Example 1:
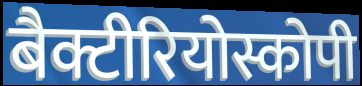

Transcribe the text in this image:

बैक्टीरियोस्कोपी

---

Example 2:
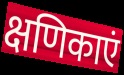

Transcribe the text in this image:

क्षणिकाएं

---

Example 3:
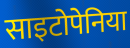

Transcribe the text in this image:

साइटोपेनिया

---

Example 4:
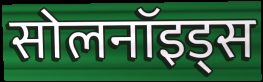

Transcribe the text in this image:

सोलनॉइड्स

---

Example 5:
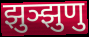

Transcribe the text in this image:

झुञ्झुणु